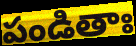
పండితాః